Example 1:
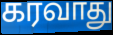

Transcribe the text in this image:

கரவாது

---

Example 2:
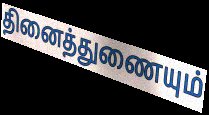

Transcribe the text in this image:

தினைத்துணையும்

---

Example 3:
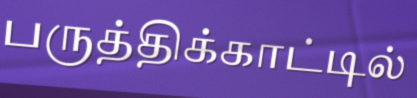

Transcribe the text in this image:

பருத்திக்காட்டில்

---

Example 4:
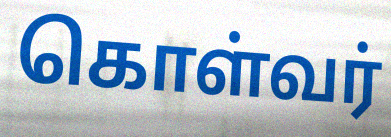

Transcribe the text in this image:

கொள்வர்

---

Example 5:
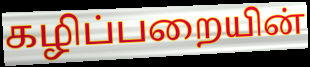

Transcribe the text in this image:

கழிப்பறையின்